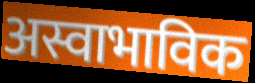
अस्वाभाविक